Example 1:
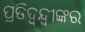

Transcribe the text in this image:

ପ୍ରତିଦ୍ୱନ୍ଦ୍ୱୀଙ୍କର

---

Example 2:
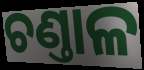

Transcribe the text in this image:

ଚଣ୍ତାଳ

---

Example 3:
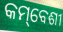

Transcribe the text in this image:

କମ୍‌ବେଶୀ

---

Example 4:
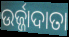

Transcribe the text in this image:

ଉର୍ଜ୍ଜାଦାତା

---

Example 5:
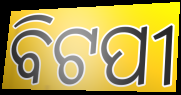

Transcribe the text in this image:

ବିଟପୀ